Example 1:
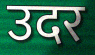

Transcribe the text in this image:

उदर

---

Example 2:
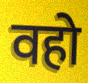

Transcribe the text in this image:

वहो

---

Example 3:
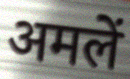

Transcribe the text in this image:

अमलें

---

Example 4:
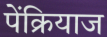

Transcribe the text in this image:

पेंक्रियाज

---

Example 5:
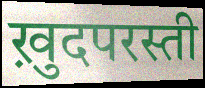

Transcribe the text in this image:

ख़ुदपरस्ती